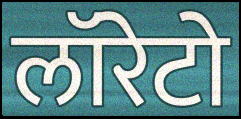
लॉरेटो